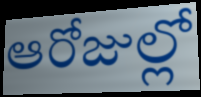
ఆరోజుల్లో